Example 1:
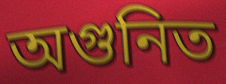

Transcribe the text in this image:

অগুনিত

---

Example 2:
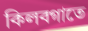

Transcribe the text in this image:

কিলবগাতে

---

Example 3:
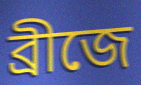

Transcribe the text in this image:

ব্রীজে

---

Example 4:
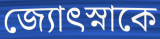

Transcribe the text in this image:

জ্যোৎস্নাকে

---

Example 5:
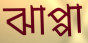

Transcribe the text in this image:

ঝাপ্পা